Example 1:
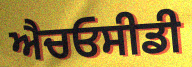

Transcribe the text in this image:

ਐਚਓਸੀਡੀ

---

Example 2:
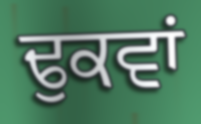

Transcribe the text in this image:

ਢੁਕਵਾਂ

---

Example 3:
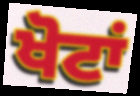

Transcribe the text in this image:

ਖੋਟਾਂ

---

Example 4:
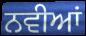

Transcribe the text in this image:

ਨਵੀਆਂ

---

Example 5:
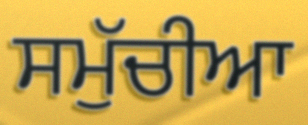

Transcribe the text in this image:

ਸਮੁੱਚੀਆ